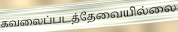
கவலைப்படத்தேவையில்லை